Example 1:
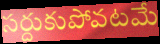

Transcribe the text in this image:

సర్దుకుపోవటమే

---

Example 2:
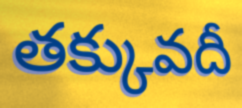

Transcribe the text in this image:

తక్కువదీ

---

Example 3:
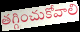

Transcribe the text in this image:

తగ్గించుకోవాలి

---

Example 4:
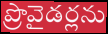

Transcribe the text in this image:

ప్రొవైడర్లను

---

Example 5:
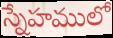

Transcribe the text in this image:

స్నేహములో